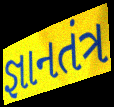
જ્ઞાનતંત્ર